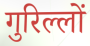
गुरिल्लों